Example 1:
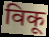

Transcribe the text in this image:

विकू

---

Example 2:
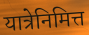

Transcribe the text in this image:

यात्रेनिमित्त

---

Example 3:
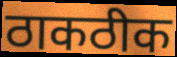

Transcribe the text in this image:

ठाकठीक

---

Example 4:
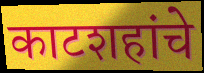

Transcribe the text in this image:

काटशहांचे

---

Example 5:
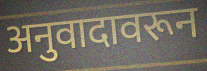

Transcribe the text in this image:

अनुवादावरून